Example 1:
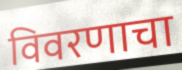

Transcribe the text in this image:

विवरणाचा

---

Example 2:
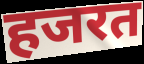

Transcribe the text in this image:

हजरत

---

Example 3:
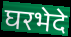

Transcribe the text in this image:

घरभेदे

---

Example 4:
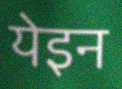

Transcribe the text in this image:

येइन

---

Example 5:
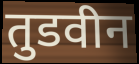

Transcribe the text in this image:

तुडवीन